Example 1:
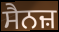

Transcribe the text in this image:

ਸੈਨਜ਼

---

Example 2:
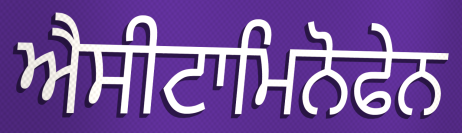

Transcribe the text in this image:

ਐਸੀਟਾਮਿਨੋਫੇਨ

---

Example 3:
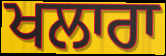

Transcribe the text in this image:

ਖਲਾਰਾ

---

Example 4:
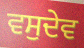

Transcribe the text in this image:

ਵਸੁਦੇਵ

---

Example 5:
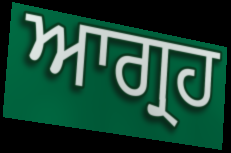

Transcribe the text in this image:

ਆਗ੍ਰਹ